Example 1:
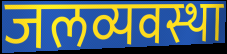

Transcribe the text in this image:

जलव्यवस्था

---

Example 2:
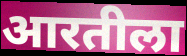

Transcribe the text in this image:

आरतीला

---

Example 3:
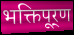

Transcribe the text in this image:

भक्तिपूर्ण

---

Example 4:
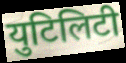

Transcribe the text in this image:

युटिलिटी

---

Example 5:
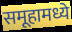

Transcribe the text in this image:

समूहामध्ये